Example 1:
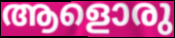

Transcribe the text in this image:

ആളൊരു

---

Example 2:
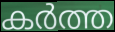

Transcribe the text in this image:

കർത്ത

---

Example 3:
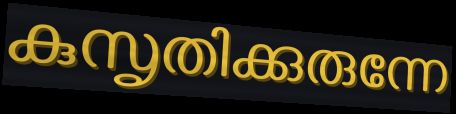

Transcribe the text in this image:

കുസൃതിക്കുരുന്നേ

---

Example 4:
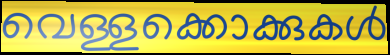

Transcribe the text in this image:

വെള്ളക്കൊക്കുകൾ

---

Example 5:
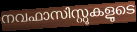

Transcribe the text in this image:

നവഫാസിസ്റ്റുകളുടെ